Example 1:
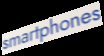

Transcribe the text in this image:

smartphones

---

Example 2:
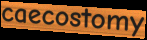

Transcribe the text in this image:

caecostomy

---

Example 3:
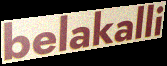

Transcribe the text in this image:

belakalli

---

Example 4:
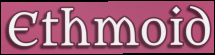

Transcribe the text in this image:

Ethmoid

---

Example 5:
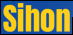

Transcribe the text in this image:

Sihon